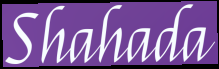
Shahada